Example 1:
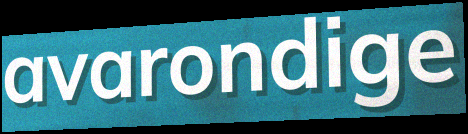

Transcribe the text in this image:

avarondige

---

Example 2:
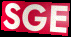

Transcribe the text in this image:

SGE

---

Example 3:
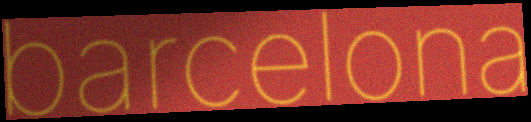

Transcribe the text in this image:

barcelona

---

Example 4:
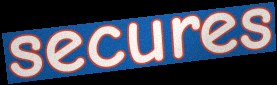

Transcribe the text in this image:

secures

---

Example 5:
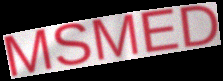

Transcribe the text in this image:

MSMED